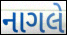
નાગલે